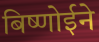
बिष्णोईने